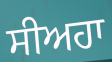
ਸੀਅਹਾ